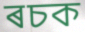
ৰচক